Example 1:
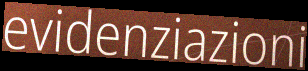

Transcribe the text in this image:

evidenziazioni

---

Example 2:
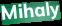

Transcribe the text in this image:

Mihaly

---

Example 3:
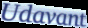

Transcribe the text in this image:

Udavant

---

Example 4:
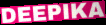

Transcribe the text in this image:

DEEPIKA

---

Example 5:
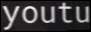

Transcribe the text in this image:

youtu